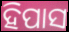
ହିପାସ